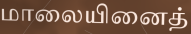
மாலையினைத்